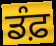
ਡੰਫ਼